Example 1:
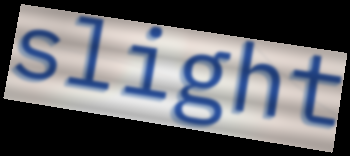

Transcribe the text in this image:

slight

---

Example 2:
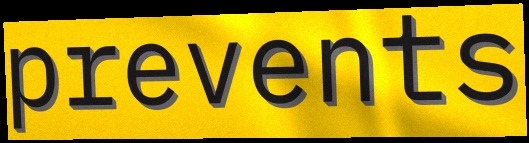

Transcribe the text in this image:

prevents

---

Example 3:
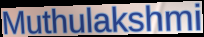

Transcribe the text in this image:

Muthulakshmi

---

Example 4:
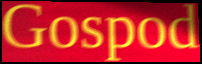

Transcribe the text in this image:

Gospod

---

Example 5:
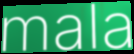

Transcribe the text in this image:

mala